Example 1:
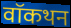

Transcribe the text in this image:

वॉकथन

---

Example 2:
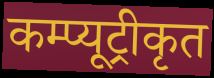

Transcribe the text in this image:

कम्प्यूट्रीकृत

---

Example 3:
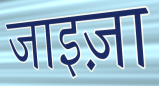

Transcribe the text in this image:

जाइज़ा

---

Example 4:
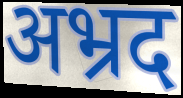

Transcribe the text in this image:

अभ्रद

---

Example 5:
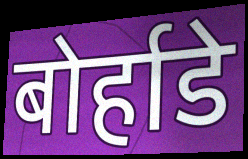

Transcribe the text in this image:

बोर्हाडे